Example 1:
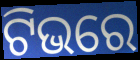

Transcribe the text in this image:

ଟିଭରେ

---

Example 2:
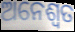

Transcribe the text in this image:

ଅନେଶ୍ଵତ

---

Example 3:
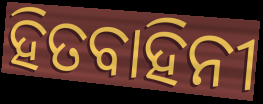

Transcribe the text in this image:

ହିତବାହିନୀ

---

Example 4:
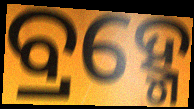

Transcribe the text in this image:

ବ୍ରହ୍ମେ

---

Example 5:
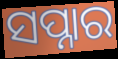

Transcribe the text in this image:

ସପ୍ନାର